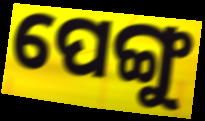
ପେଙ୍ଗୁ